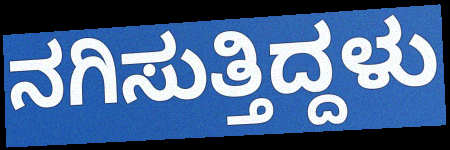
ನಗಿಸುತ್ತಿದ್ದಳು